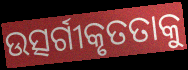
ଉତ୍ସର୍ଗୀକୃତତାକୁ